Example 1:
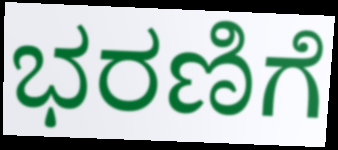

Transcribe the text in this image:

ಭರಣಿಗೆ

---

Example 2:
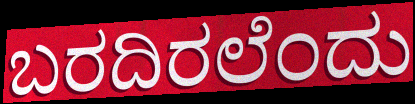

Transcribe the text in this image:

ಬರದಿರಲೆಂದು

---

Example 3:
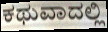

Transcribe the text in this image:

ಕಥುವಾದಲ್ಲಿ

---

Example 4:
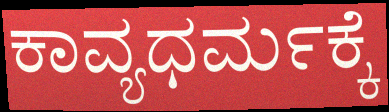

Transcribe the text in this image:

ಕಾವ್ಯಧರ್ಮಕ್ಕೆ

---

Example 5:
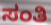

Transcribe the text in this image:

ಸಂತಿ